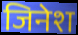
जिनेश